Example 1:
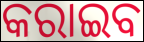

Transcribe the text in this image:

କରାଇବ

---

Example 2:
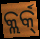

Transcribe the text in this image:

କ୍ଲର୍କ୍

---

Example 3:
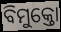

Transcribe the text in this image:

ବିମୁକ୍ତୋ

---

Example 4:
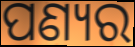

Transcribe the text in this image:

ପଣ୍ୟର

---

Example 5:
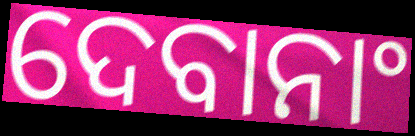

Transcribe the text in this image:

ଦେବାନାଂ